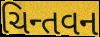
ચિન્તવન